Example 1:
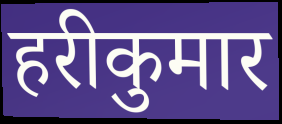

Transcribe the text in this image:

हरीकुमार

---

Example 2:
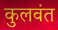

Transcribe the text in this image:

कुलवंत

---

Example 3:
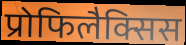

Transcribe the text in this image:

प्रोफिलैक्सिस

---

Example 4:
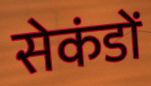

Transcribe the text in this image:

सेकंडों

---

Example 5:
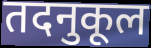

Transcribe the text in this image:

तदनुकूल